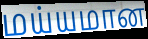
மய்யமான